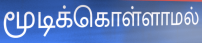
மூடிக்கொள்ளாமல்